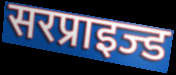
सरप्राइज्ड